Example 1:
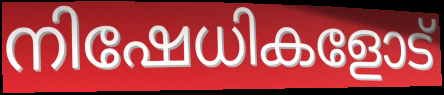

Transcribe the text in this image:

നിഷേധികളോട്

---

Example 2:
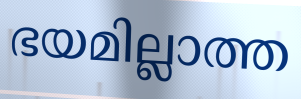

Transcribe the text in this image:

ഭയമില്ലാത്ത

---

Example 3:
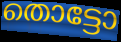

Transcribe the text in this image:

തൊട്ടോ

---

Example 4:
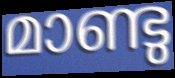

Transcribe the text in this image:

മാണ്ടു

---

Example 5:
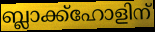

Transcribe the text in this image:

ബ്ലാക്ക്ഹോളിന്